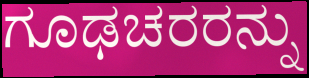
ಗೂಢಚರರನ್ನು